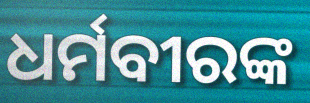
ଧର୍ମବୀରଙ୍କ